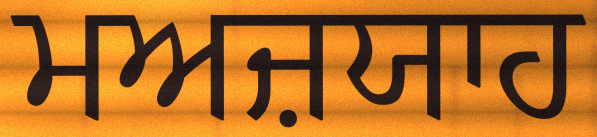
ਮਅਜ਼ਯਾਹ